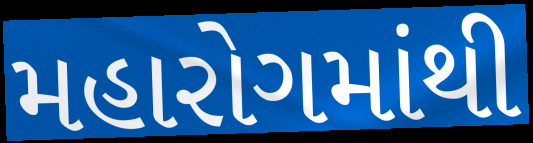
મહારોગમાંથી